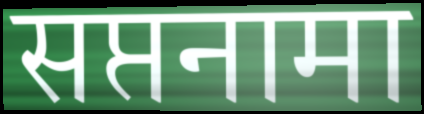
सप्तनामा